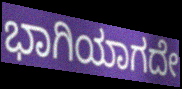
ಭಾಗಿಯಾಗದೇ